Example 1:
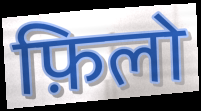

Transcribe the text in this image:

फ़िलो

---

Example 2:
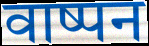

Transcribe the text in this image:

वाष्पन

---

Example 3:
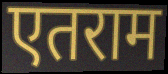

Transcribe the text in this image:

एतराम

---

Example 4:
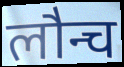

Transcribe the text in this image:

लौन्च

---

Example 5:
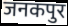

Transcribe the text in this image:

जनकपुर